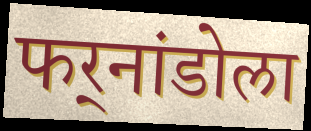
फर्नांडोला